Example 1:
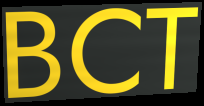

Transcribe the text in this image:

BCT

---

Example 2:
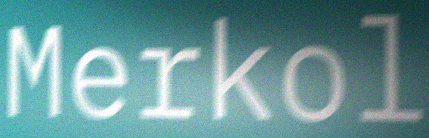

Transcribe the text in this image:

Merkol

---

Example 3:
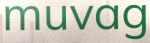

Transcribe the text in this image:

muvag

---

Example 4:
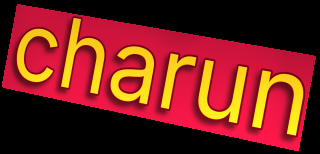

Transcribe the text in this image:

charun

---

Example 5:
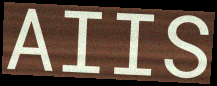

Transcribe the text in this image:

AIIS